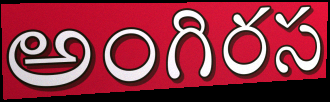
అంగిరస